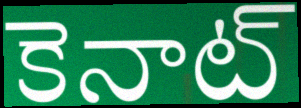
కెనాట్